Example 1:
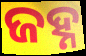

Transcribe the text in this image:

ଜହ୍ନ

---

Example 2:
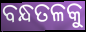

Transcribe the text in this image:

ବନ୍ଧତଳକୁ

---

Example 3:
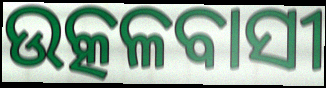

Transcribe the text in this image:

ଉତ୍କଳବାସୀ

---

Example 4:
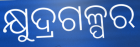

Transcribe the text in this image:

କ୍ଷୁଦ୍ରଗଳ୍ପର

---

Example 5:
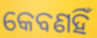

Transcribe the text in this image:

କେବଣହିଁ